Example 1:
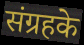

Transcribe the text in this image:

संग्रहके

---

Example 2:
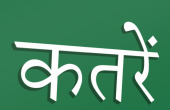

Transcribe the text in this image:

कतरें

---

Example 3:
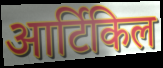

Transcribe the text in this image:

आर्टिकिल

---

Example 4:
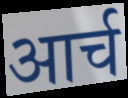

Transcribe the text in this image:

आर्च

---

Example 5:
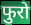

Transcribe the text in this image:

फुरो